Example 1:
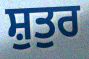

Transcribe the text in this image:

ਸ਼ੁਤੁਰ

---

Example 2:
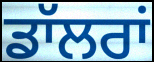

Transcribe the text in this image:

ਡਾੱਲਰਾਂ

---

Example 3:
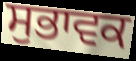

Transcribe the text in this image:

ਸੁਭਾਵਕ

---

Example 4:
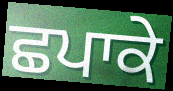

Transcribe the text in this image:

ਛਪਾਕੇ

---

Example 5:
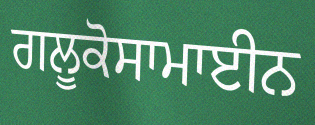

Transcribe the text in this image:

ਗਲੂਕੋਸਾਮਾਈਨ